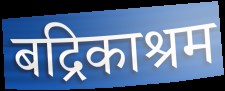
बद्रिकाश्रम